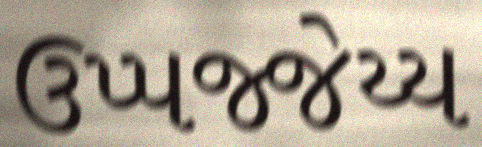
ઉપ્પજ્જેય્ય